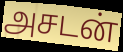
அசடன்